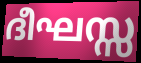
ദീഘസ്സ